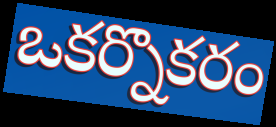
ఒకర్నొకరం